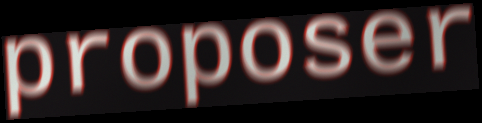
proposer